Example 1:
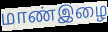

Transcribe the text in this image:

மாண்இழை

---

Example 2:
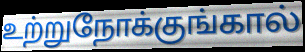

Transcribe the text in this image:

உற்றுநோக்குங்கால்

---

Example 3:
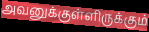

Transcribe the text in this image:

அவனுக்குள்ளிருக்கும்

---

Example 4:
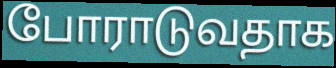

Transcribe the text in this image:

போராடுவதாக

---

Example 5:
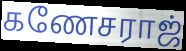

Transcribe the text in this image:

கணேசராஜ்